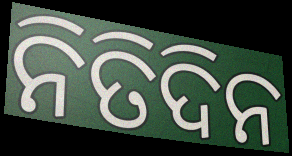
ନିତିଦିନ